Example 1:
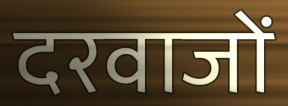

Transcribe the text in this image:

दरवाजों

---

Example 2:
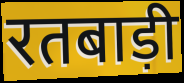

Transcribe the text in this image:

रतबाड़ी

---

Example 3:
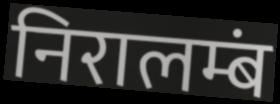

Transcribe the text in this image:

निरालम्बं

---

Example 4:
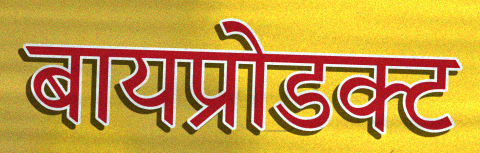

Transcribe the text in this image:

बायप्रोडक्ट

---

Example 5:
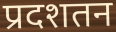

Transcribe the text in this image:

प्रदशतन